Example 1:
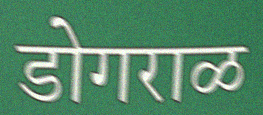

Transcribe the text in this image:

डोगराळ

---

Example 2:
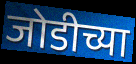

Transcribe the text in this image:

जोडीच्या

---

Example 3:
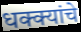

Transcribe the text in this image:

धक्क्यांचे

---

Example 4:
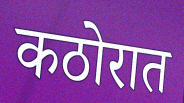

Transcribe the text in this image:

कठोरात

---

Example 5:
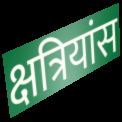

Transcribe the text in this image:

क्षत्रियांस